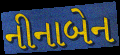
નીનાબેન